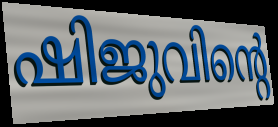
ഷിജുവിന്റെ